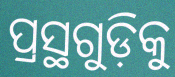
ପ୍ରସ୍ଥଗୁଡ଼ିକୁ